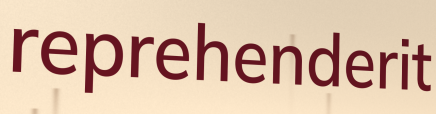
reprehenderit